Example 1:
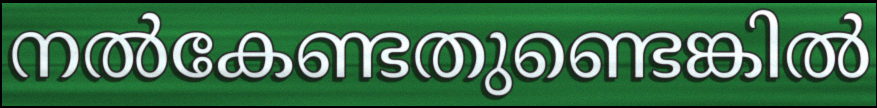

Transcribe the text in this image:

നൽകേണ്ടതുണ്ടെങ്കിൽ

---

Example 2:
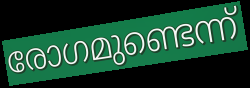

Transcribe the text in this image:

രോഗമുണ്ടെന്ന്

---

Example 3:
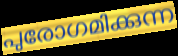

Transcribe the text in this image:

പുരോഗമിക്കുന്ന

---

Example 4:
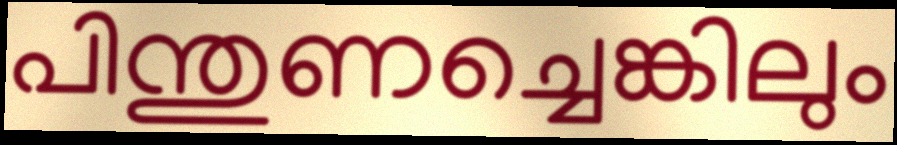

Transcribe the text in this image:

പിന്തുണച്ചെങ്കിലും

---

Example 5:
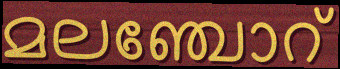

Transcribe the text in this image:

മലഞ്ചോറ്